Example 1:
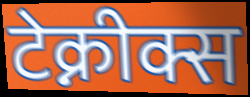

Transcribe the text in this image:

टेक्नीक्स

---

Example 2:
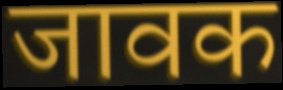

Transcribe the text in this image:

जावक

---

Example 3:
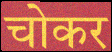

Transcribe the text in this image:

चोकर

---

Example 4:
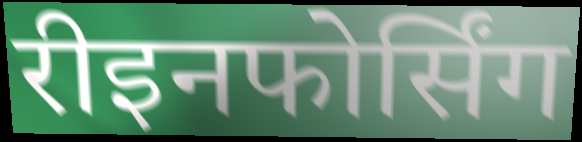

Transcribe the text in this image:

रीइनफोर्सिंग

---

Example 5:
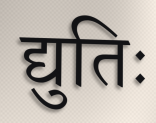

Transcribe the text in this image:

द्युतिः